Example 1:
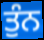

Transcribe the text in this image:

ਤੁੰਨ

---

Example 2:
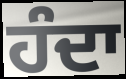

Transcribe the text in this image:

ਹੰਦਾ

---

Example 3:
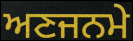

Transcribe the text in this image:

ਅਣਜਨਮੇ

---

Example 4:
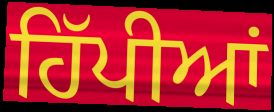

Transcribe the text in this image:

ਹਿੱਪੀਆਂ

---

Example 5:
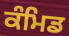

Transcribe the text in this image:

ਕੰਮਿਡ